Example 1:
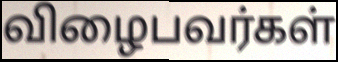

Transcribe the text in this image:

விழைபவர்கள்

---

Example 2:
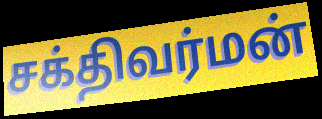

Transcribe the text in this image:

சக்திவர்மன்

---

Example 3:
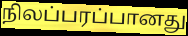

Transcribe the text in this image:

நிலப்பரப்பானது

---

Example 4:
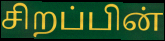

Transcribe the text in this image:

சிறப்பின்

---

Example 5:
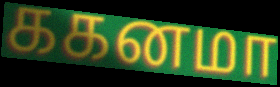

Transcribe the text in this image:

ககனமா